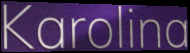
Karolina